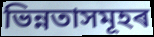
ভিন্নতাসমূহৰ